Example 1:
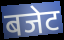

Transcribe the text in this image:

बजेट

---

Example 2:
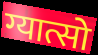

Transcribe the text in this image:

ग्यात्सो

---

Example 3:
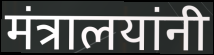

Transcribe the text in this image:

मंत्रालयांनी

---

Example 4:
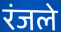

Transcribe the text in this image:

रंजले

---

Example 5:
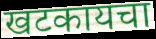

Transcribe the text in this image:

खटकायचा